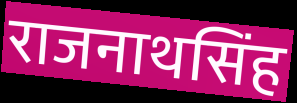
राजनाथसिंह